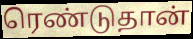
ரெண்டுதான்